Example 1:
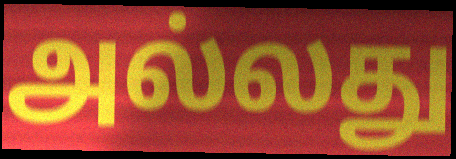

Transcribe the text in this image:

அல்லது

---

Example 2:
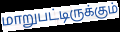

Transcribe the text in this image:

மாறுபட்டிருக்கும்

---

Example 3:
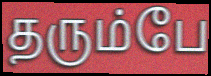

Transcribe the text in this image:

தரும்பே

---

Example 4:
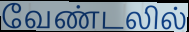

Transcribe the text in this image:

வேண்டலில்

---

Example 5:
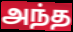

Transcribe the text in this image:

அந்த